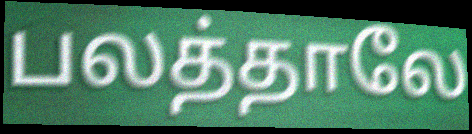
பலத்தாலே